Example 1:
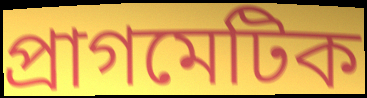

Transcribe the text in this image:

প্ৰাগমেটিক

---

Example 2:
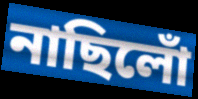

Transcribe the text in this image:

নাছিলোঁ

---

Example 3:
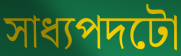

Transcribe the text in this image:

সাধ্যপদটো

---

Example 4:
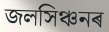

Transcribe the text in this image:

জলসিঞ্চনৰ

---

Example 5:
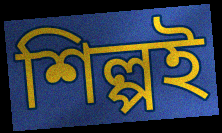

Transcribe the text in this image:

শিল্পই